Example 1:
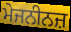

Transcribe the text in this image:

ਮੇਜਨੀਨਜ਼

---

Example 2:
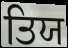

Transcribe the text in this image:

ਤਿਯ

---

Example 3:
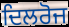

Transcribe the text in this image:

ਦਿਲਰੋਜ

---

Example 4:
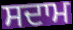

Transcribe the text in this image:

ਸਦਾਮ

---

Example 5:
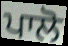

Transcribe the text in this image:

ਪਾਲੋ